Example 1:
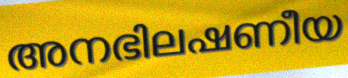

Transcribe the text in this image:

അനഭിലഷണീയ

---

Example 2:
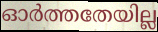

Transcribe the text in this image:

ഓർത്തതേയില്ല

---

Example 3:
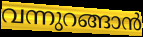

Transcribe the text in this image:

വന്നുറങ്ങാൻ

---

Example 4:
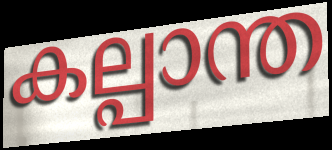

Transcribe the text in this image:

കല്പാന്ത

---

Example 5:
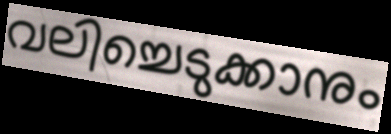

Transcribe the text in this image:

വലിച്ചെടുക്കാനും